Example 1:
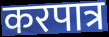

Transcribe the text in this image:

करपात्र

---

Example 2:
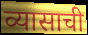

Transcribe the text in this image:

व्यासाची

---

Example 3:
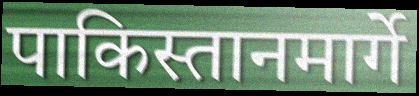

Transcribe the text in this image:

पाकिस्तानमार्गे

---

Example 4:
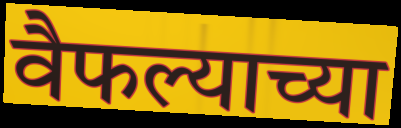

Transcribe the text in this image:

वैफल्याच्या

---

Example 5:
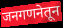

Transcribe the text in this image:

जनगणनेतून